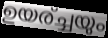
ഉയര്ച്ചയും